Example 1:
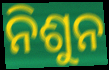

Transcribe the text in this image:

ନିଶୁନ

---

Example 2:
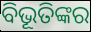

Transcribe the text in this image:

ବିଭୂତିଙ୍କର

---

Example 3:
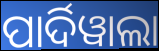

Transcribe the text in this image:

ପାର୍ଦିୱାଲା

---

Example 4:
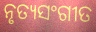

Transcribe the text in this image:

ନୃତ୍ୟସଂଗୀତ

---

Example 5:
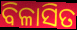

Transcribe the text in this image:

ବିଳାସିତ